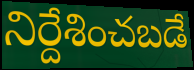
నిర్దేశించబడే